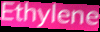
Ethylene